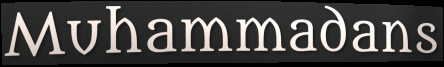
Muhammadans